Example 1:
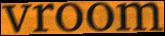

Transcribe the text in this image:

vroom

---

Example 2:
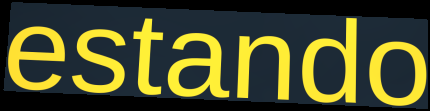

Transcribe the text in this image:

estando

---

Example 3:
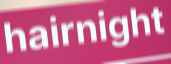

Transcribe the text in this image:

hairnight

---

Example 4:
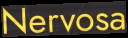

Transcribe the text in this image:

Nervosa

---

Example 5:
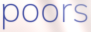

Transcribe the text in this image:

poors